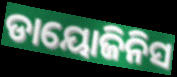
ଡାୟୋଜିନିସ